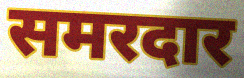
समरदार